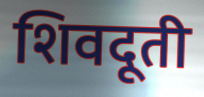
शिवदूती